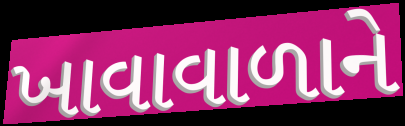
ખાવાવાળાને